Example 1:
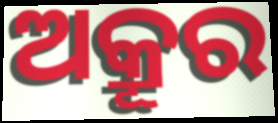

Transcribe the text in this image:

ଅକ୍ରୂର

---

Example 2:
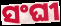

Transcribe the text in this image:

ସଂଘୀ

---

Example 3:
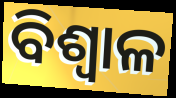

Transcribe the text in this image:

ବିଶ୍ୱାଳ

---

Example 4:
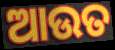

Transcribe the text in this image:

ଆଉତ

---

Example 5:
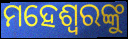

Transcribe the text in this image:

ମହେଶ୍ଵରଙ୍କୁ